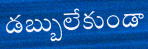
డబ్బులేకుండా